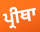
ਪ੍ਰੀਥਾ